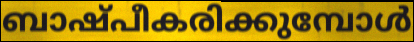
ബാഷ്പീകരിക്കുമ്പോൾ